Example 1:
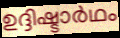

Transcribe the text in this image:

ഉദ്ദിഷ്ടാർഥം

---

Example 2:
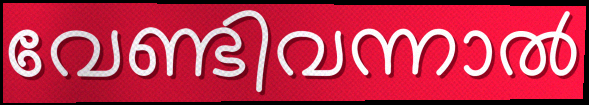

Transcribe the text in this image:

വേണ്ടിവന്നാൽ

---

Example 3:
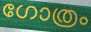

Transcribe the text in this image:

ഗോത്രം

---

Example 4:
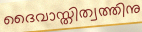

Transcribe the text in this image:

ദൈവാസ്തിത്വത്തിനു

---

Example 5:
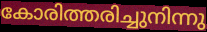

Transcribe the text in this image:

കോരിത്തരിച്ചുനിന്നു